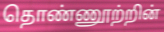
தொண்ணூற்றின்